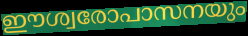
ഈശ്വരോപാസനയും